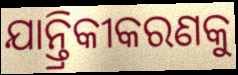
ଯାନ୍ତ୍ରିକୀକରଣକୁ